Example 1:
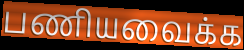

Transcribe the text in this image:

பணியவைக்க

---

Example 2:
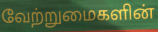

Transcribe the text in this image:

வேற்றுமைகளின்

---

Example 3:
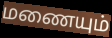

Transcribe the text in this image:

மணையும்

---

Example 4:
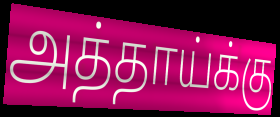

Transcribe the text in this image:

அத்தாய்க்கு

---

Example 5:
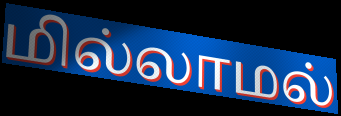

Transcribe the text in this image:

மில்லாமல்